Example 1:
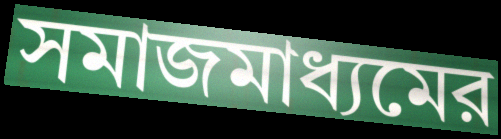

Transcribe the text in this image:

সমাজমাধ্যমের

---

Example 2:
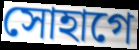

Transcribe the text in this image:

সোহাগে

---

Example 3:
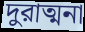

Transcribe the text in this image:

দুরাত্মনা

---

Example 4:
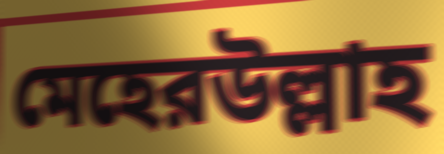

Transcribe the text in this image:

মেহেরউল্লাহ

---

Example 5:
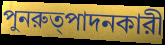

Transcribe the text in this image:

পুনরুত্পাদনকারী